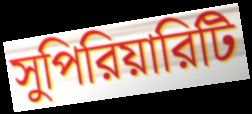
সুপিরিয়ারিটি